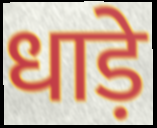
धाड़े